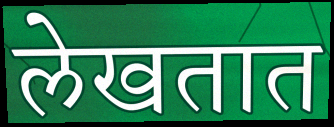
लेखतात